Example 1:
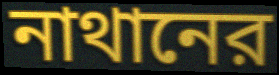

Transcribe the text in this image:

নাথানের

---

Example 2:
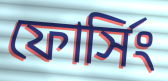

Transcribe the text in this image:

ফোর্সিং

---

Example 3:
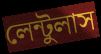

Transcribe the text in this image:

লেন্টুলাস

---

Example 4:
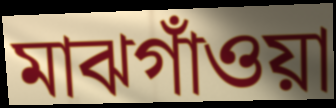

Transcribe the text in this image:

মাঝগাঁওয়া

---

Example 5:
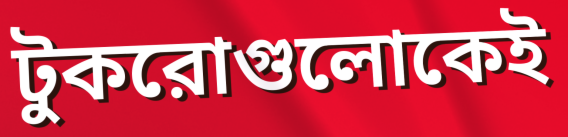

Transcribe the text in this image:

টুকরোগুলোকেই